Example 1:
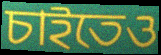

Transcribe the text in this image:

চাইতেও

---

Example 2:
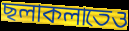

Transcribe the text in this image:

ছলাকলাতেও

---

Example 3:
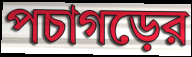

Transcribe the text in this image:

পচাগড়ের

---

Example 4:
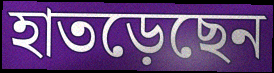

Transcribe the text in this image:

হাতড়েছেন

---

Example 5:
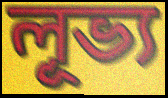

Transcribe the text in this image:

লূভ্য